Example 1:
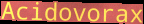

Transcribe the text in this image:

Acidovorax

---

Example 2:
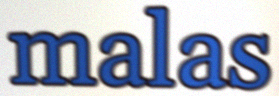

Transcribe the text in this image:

malas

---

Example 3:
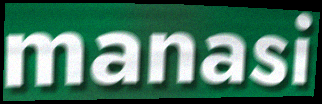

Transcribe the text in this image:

manasi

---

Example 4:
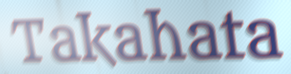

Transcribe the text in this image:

Takahata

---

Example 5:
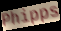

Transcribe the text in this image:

Phipps